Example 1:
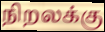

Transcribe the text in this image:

நிறலக்கு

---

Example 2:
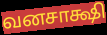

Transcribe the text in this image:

வனசாக்ஷி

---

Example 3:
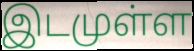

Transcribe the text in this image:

இடமுள்ள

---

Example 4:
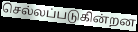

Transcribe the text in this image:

செல்லப்படுகின்றன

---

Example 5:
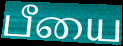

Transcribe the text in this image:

பீயை